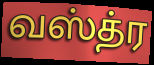
வஸ்த்ர